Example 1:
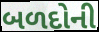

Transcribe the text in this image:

બળદોની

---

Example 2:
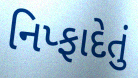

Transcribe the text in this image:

નિપ્ફાદેતું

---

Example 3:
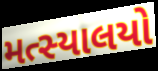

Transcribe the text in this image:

મત્સ્યાલયો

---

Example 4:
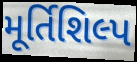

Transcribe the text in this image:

મૂર્તિશિલ્પ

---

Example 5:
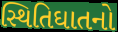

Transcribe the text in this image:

સ્થિતિઘાતનો